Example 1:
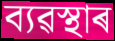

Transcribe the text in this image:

ব্যৱস্থাৰ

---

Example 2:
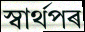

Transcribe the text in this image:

স্বাৰ্থপৰ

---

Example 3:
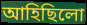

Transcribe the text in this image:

আহিছিলো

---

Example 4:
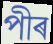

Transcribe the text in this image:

পীৰ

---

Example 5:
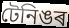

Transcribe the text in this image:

টেনিঙৰ